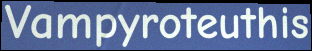
Vampyroteuthis